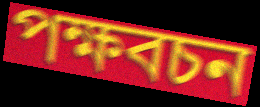
পক্ষবচন